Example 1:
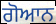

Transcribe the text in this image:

ਗੋਆਨ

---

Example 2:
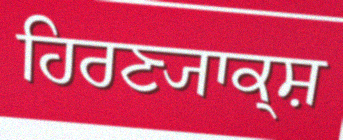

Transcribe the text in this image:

ਹਿਰਣ੍ਯਾਕ੍ਸ਼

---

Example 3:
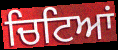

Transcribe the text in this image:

ਚਿਟਿਆਂ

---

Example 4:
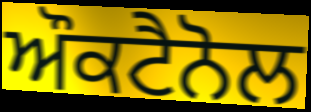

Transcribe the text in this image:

ਔਕਟੈਨੋਲ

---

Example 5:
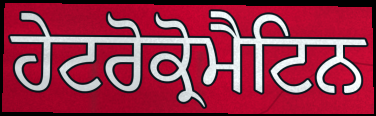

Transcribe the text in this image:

ਹੇਟਰੋਕ੍ਰੋਮੈਟਿਨ